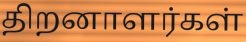
திறனாளர்கள்